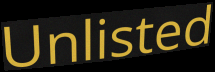
Unlisted